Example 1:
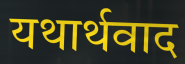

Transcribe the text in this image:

यथार्थवाद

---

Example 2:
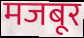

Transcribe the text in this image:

मजबूर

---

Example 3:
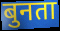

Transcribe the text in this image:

बुनता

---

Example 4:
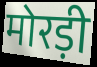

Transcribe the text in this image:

मोरड़ी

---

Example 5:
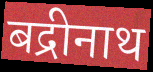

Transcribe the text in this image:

बद्रीनाथ